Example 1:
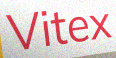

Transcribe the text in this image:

Vitex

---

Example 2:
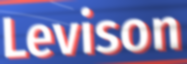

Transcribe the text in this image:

Levison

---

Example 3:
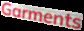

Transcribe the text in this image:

Garments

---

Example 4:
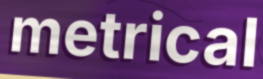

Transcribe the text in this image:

metrical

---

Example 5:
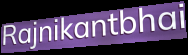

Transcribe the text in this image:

Rajnikantbhai